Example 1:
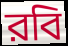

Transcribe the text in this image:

রবি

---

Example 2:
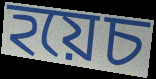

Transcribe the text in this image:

হয়েচ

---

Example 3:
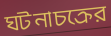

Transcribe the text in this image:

ঘটনাচক্রের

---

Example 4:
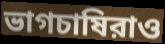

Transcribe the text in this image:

ভাগচাষিরাও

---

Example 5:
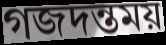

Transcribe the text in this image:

গজদন্তময়